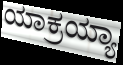
ಯಾಕ್ರಯ್ಯಾ